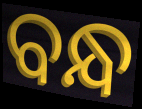
ବନ୍ଧ